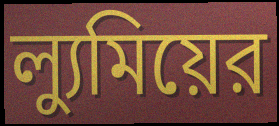
ল্যুমিয়ের